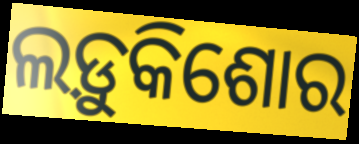
ଲଡ଼ୁକିଶୋର